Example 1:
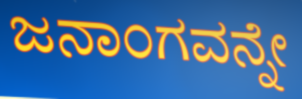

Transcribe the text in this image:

ಜನಾಂಗವನ್ನೇ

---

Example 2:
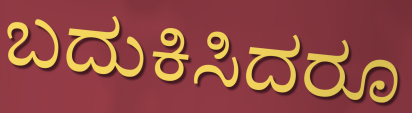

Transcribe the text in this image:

ಬದುಕಿಸಿದರೂ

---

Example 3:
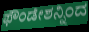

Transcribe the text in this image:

ಫೌಂಡೇಶನ್ನಿಂದ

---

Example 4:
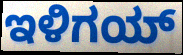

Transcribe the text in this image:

ಇಳಿಗಯ್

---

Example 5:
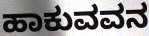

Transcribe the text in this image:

ಹಾಕುವವನ